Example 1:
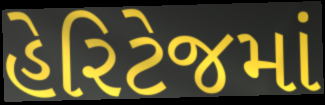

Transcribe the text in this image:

હેરિટેજમાં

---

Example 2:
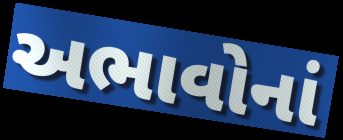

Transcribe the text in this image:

અભાવોનાં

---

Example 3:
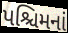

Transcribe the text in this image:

પશ્ચિમનાં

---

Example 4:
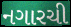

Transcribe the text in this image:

નગારચી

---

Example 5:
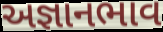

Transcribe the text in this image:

અજ્ઞાનભાવ